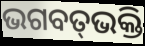
ଭଗବତ୍‌ଭକ୍ତି